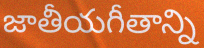
జాతీయగీతాన్ని